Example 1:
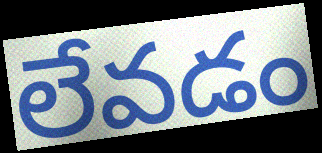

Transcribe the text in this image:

లేవడం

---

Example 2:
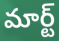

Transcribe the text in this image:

మార్ట్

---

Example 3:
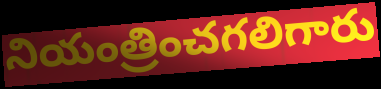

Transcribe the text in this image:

నియంత్రించగలిగారు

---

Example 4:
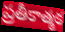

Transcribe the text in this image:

ప్రతీకాత్మక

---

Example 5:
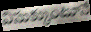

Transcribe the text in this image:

విసుక్కుంటూనే